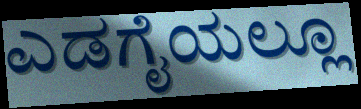
ಎಡಗೈಯಲ್ಲೂ